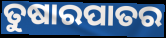
ତୁଷାରପାତର